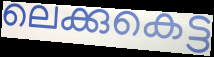
ലെക്കുകെട്ട